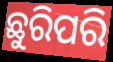
ଛୁରିପରି